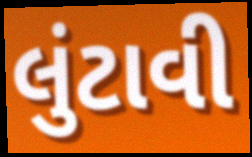
લુંટાવી